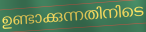
ഉണ്ടാക്കുന്നതിനിടെ